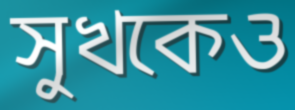
সুখকেও